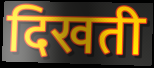
दिखती